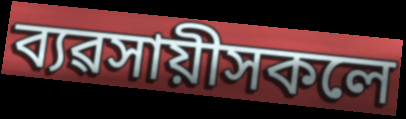
ব্যৱসায়ীসকলে